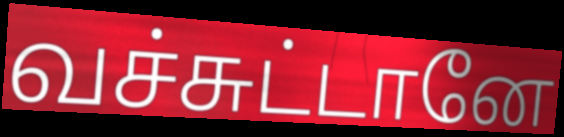
வச்சுட்டானே